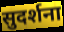
सुदर्शना